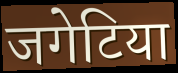
जगेटिया